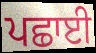
ਪਛਾਈ